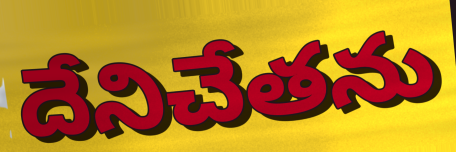
దేనిచేతను